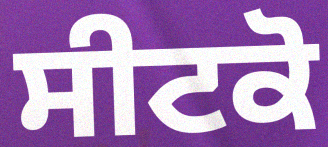
ਸੀਟਕੋ